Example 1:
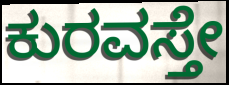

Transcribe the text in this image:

ಕುರವಸ್ತೇ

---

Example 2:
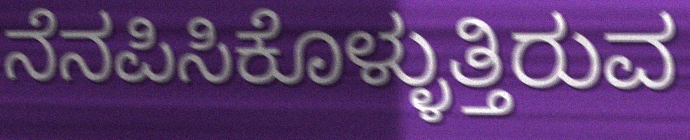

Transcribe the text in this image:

ನೆನಪಿಸಿಕೊಳ್ಳುತ್ತಿರುವ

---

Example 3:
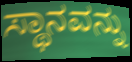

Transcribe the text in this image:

ಸ್ಥಾನವನ್ನು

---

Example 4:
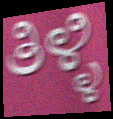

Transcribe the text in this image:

ತಿಳ್ಳಿ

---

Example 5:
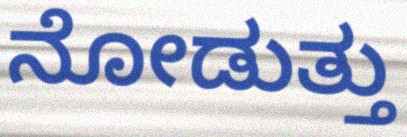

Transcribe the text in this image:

ನೋಡುತ್ತು